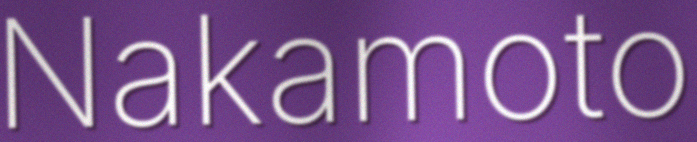
Nakamoto